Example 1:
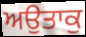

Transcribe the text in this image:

ਅਉਤਾਕੁ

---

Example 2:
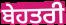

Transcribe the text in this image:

ਬੇਹਤਰੀ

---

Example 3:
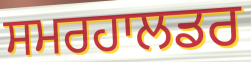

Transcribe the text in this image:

ਸਮਰਹਾਲਡਰ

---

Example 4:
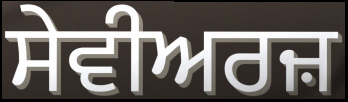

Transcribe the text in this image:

ਸੇਵੀਅਰਜ਼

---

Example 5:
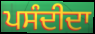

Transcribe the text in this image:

ਪਸੰਦੀਦਾ